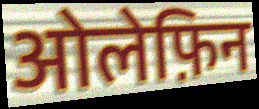
ओलेफ़िन